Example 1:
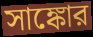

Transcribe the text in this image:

সাঙ্কোর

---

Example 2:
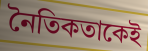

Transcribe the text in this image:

নৈতিকতাকেই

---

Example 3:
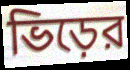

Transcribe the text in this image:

ভিড়ের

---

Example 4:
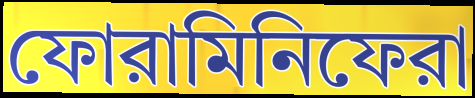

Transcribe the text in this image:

ফোরামিনিফেরা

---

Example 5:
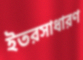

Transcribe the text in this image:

ইতরসাধারণ